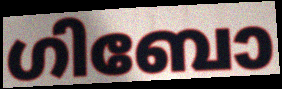
ഗിബോ